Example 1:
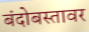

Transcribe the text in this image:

बंदोबस्तावर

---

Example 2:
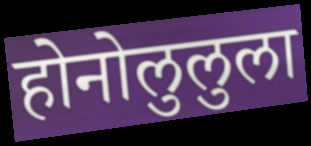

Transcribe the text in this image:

होनोलुलुला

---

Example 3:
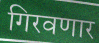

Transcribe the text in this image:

गिरवणार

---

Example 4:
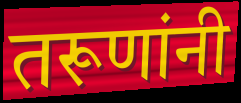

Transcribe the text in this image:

तरूणांनी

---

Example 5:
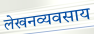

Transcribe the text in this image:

लेखनव्यवसाय